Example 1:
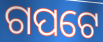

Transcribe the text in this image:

ଗପଟେ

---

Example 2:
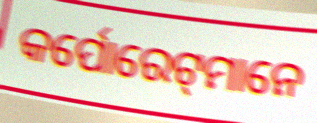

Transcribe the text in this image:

କର୍ପୋରେଟ୍‌ମାନେ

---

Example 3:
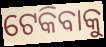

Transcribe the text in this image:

ଟେକିବାକୁ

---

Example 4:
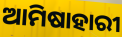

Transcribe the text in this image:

ଆମିଷାହାରୀ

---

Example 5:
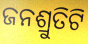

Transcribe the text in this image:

ଜନଶ୍ରୁତିଟି